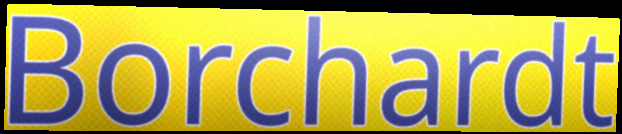
Borchardt